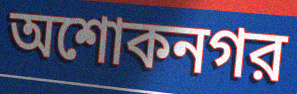
অশোকনগর